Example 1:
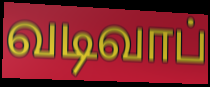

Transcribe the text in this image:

வடிவாப்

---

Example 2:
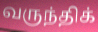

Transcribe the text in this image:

வருந்திக்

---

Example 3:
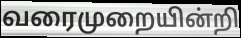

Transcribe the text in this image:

வரைமுறையின்றி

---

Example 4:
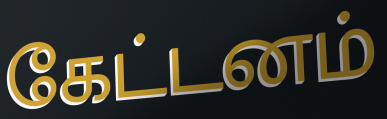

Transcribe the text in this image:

கேட்டனம்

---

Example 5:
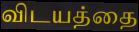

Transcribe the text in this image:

விடயத்தை